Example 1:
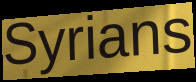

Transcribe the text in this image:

Syrians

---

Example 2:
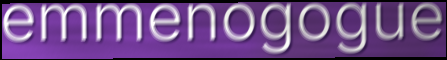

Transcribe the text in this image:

emmenogogue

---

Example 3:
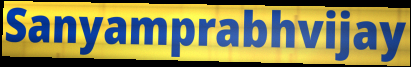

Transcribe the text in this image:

Sanyamprabhvijay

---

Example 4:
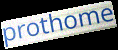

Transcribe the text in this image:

prothome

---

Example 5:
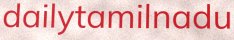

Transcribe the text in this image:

dailytamilnadu